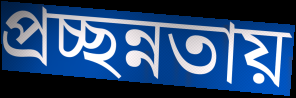
প্রচ্ছন্নতায়